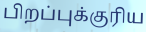
பிறப்புக்குரிய